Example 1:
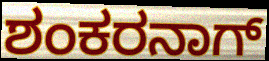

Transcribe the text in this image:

ಶಂಕರನಾಗ್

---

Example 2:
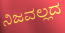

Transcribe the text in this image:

ನಿಜವಲ್ಲದ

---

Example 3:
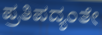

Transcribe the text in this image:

ಪ್ರತಿಪದ್ಯಂತೇ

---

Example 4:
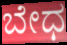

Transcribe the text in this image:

ಬೇಧ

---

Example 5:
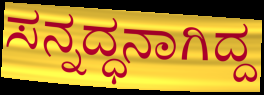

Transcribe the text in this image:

ಸನ್ನದ್ಧನಾಗಿದ್ದ